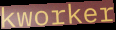
kworker